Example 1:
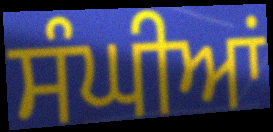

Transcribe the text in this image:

ਸੰਘੀਆਂ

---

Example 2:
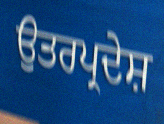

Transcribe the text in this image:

ਉਤਰਪ੍ਰਦੇਸ਼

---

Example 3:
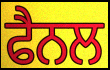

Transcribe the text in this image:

ਫੈਨਲ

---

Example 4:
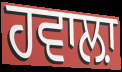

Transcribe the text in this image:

ਹਵਾਲ਼ਾ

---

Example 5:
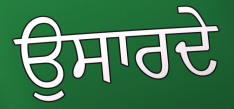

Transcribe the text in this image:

ਉਸਾਰਦੇ